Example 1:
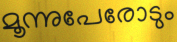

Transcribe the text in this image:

മൂന്നുപേരോടും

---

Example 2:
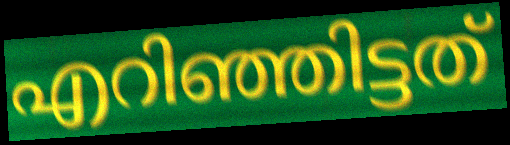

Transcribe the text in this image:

എറിഞ്ഞിട്ടത്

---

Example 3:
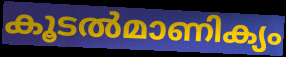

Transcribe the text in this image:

കൂടൽമാണിക്യം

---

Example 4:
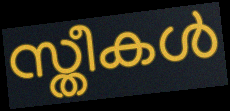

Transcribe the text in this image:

സ്തീകൾ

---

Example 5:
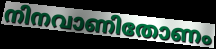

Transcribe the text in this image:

നിനവാണിതോണം